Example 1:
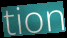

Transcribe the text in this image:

tion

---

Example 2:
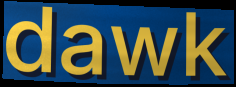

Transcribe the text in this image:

dawk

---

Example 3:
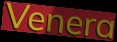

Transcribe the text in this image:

Venera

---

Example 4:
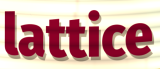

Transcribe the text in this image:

lattice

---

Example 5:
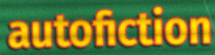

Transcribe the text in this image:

autofiction